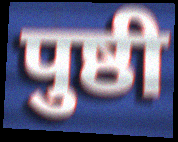
पुष्ठी